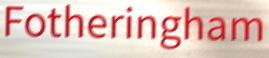
Fotheringham